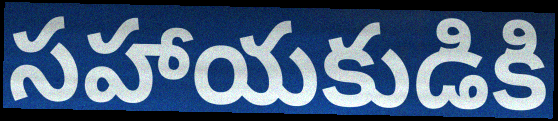
సహాయకుడికి